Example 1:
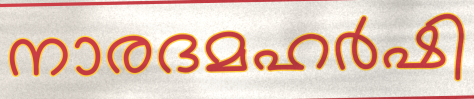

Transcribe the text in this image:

നാരദമഹർഷി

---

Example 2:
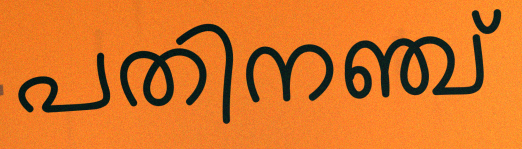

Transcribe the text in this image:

പതിനഞ്ച്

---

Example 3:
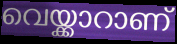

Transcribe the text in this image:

വെയ്ക്കാറാണ്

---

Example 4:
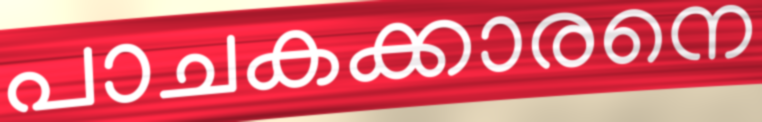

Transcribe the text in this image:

പാചകക്കാരനെ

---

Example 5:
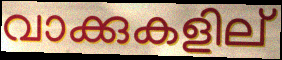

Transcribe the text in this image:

വാക്കുകളില്